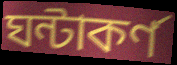
ঘন্টাকর্ণ